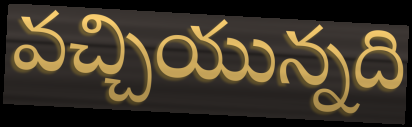
వచ్చియున్నది